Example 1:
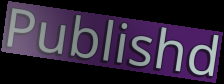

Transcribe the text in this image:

Publishd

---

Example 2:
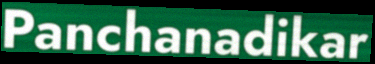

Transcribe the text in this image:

Panchanadikar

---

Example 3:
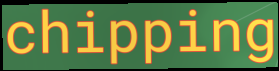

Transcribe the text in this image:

chipping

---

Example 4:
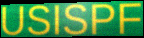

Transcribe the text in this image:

USISPF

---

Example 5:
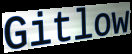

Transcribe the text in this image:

Gitlow